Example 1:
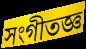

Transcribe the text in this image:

সংগীতজ্ঞ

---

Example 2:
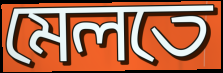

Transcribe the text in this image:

মেলতে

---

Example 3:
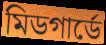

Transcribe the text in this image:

মিডগার্ডে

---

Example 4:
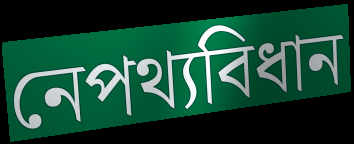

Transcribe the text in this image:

নেপথ্যবিধান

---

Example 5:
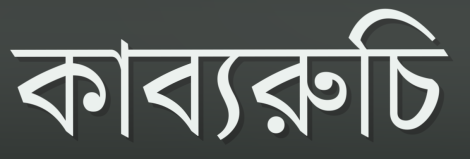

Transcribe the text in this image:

কাব্যরুচি